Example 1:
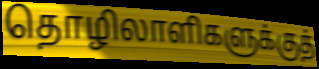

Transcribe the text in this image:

தொழிலாளிகளுக்குத்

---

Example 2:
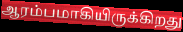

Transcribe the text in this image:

ஆரம்பமாகியிருக்கிறது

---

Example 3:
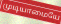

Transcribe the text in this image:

முடியாமையே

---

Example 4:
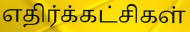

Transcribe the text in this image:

எதிர்க்கட்சிகள்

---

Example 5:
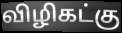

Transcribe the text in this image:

விழிகட்கு